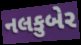
નલકુબેર